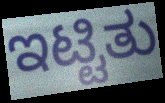
ಇಟ್ಟಿತು